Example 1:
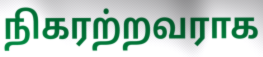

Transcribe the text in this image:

நிகரற்றவராக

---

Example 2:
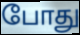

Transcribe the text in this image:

போது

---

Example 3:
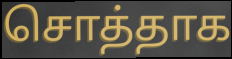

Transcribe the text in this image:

சொத்தாக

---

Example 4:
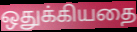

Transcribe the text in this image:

ஒதுக்கியதை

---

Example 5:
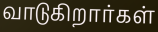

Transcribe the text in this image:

வாடுகிறார்கள்